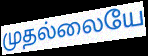
முதல்லையே